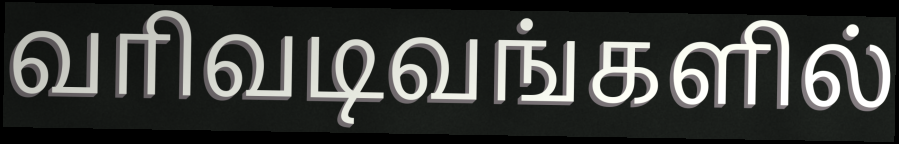
வரிவடிவங்களில்